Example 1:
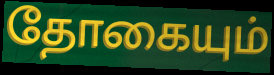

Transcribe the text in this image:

தோகையும்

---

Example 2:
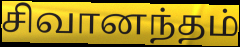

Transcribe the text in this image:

சிவானந்தம்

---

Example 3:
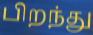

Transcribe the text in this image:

பிறந்து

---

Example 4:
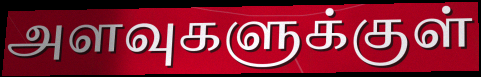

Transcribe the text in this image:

அளவுகளுக்குள்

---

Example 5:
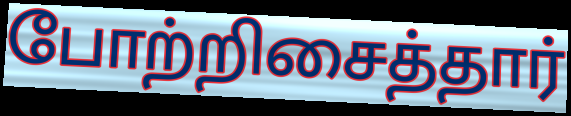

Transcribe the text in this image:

போற்றிசைத்தார்